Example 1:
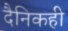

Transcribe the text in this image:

दैनिकही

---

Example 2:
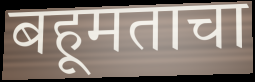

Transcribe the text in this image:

बहूमताचा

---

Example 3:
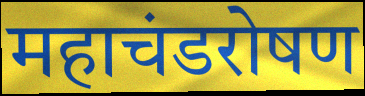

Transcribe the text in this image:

महाचंडरोषण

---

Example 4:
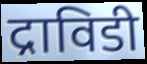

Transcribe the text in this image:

द्राविडी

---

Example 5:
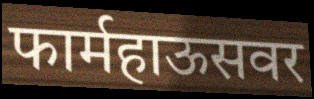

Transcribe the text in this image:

फार्महाऊसवर